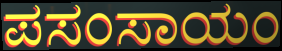
ಪಸಂಸಾಯಂ